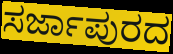
ಸರ್ಜಾಪುರದ